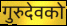
गुरुदेवको